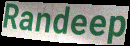
Randeep